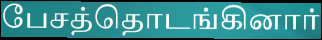
பேசத்தொடங்கினார்